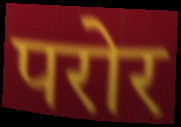
परोर